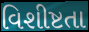
વિશીષ્ટતા